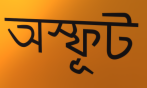
অস্ফূট